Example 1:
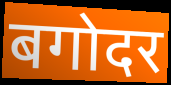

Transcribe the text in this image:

बगोदर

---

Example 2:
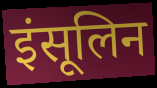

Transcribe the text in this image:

इंसूलिन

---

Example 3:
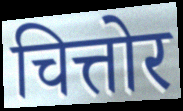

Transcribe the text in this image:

चित्तोर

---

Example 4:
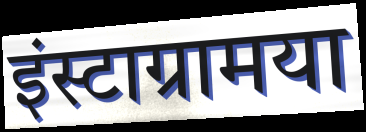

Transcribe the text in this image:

इंस्टाग्रामया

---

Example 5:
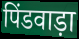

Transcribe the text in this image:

पिंडवाड़ा